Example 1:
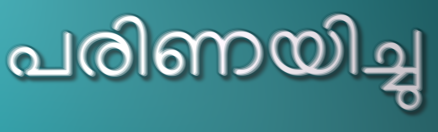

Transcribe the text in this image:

പരിണയിച്ചു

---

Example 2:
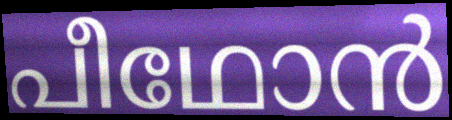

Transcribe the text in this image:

പീഥോൻ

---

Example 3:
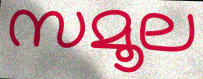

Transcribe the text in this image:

സമൂല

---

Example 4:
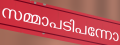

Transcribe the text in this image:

സമ്മാപടിപന്നോ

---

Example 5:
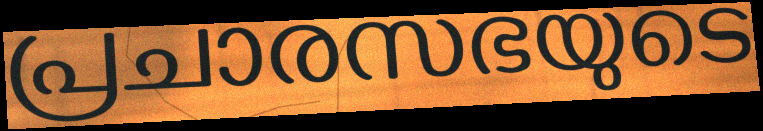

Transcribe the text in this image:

പ്രചാരസഭയുടെ